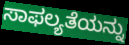
ಸಾಫಲ್ಯತೆಯನ್ನು